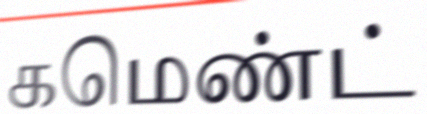
கமெண்ட்